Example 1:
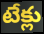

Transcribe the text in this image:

టేక్లు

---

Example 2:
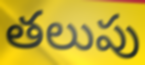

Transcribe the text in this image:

తలుపు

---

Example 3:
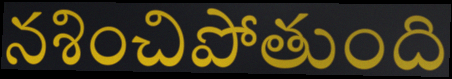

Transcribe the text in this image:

నశించిపోతుంది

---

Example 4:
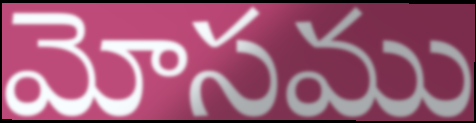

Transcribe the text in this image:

మోసము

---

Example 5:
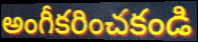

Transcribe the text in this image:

అంగీకరించకండి